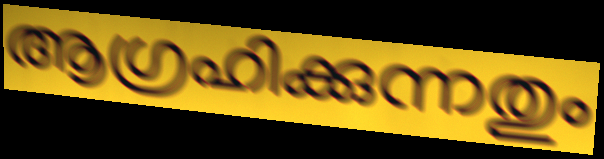
ആഗ്രഹിക്കുന്നതും